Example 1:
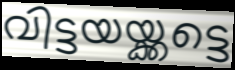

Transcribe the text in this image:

വിട്ടയയ്ക്കട്ടെ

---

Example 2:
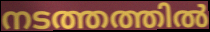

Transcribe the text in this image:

നടത്തത്തിൽ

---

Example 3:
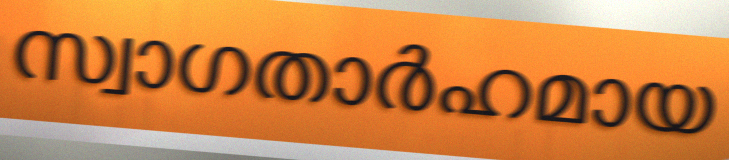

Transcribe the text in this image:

സ്വാഗതാർഹമായ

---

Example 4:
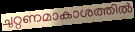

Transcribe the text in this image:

ചുറ്റണമാകാശത്തിൽ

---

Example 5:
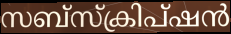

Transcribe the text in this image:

സബ്സ്ക്രിപ്ഷൻ